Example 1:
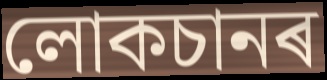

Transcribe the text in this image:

লোকচানৰ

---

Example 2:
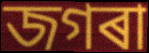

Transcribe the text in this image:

জগৰা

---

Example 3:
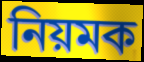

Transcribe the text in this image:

নিয়মক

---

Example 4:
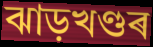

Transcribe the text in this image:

ঝাড়খণ্ডৰ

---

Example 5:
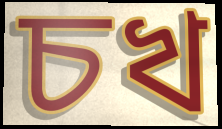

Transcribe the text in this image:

চখ